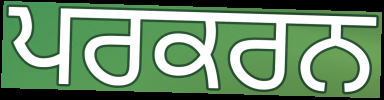
ਪਰਕਰਨ